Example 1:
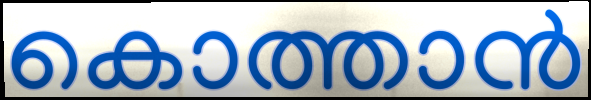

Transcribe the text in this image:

കൊത്താൻ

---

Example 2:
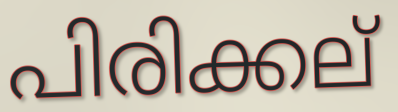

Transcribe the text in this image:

പിരിക്കല്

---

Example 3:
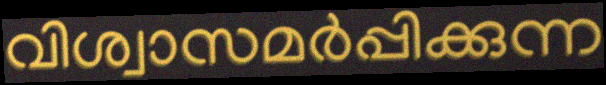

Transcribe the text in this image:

വിശ്വാസമർപ്പിക്കുന്ന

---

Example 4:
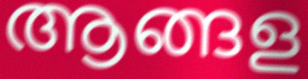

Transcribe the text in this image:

ആങ്ങള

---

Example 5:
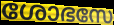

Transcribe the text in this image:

ശോഭസേ